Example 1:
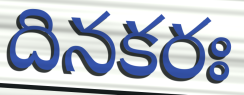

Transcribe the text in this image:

దినకరః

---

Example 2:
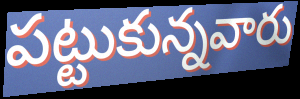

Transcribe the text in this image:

పట్టుకున్నవారు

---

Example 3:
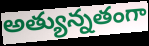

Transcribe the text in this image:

అత్యున్నతంగా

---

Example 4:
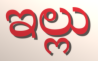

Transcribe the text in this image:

ఇల్లు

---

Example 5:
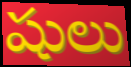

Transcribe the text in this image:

షులు